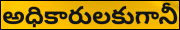
అధికారులకుగానీ